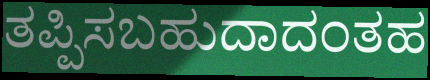
ತಪ್ಪಿಸಬಹುದಾದಂತಹ